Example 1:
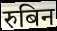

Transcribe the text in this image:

रुबिन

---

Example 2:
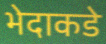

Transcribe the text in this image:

भेदाकडे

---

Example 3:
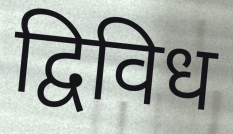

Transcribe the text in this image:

द्विविध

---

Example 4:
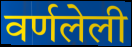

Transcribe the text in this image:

वर्णलेली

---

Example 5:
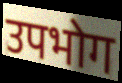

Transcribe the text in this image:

उपभोग